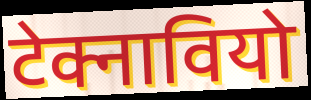
टेक्नावियो